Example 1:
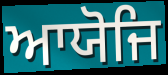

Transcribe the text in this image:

ਆਯੋਜਿ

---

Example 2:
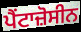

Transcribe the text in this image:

ਪੈਂਟਾਜ਼ੋਸੀਨ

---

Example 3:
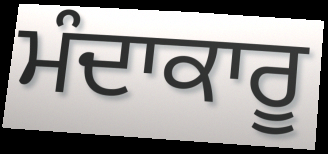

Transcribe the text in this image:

ਮੰਦਾਕਾਰੂ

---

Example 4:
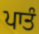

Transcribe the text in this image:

ਪਾਤੰ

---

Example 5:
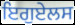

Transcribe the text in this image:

ਇਗੁਏਲਸ